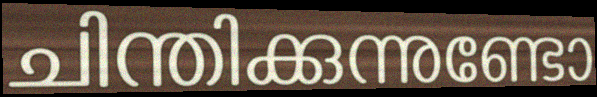
ചിന്തിക്കുന്നുണ്ടോ